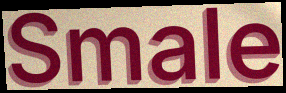
Smale